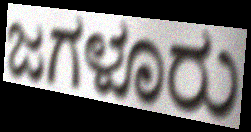
ಜಗಳೂರು